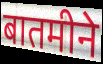
बातमीने